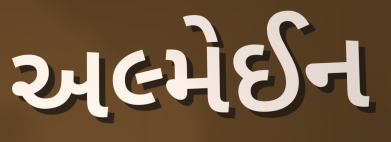
અલ્મેઈન